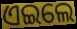
ଏଇଲେ